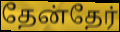
தேன்தேர்